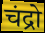
चंद्रो